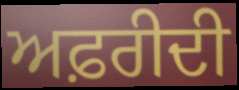
ਅਫ਼ਰੀਦੀ